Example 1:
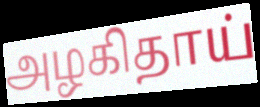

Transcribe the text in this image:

அழகிதாய்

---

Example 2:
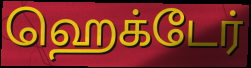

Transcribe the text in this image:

ஹெக்டேர்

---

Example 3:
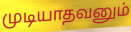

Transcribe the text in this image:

முடியாதவனும்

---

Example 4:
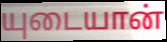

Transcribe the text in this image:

யுடையான்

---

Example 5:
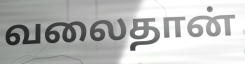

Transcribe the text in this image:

வலைதான்